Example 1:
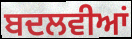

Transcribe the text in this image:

ਬਦਲਵੀਆਂ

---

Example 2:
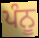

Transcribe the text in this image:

ਪੰਨੂ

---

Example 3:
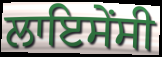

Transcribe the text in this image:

ਲਾਇਸੇਂਸੀ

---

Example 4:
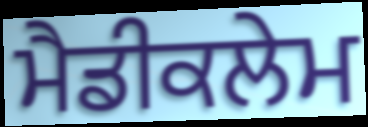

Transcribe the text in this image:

ਮੈਡੀਕਲੇਮ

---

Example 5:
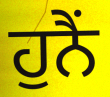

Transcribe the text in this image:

ਹੁਨੈਂ